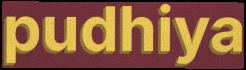
pudhiya